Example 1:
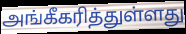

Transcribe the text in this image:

அங்கீகரித்துள்ளது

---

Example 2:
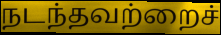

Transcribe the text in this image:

நடந்தவற்றைச்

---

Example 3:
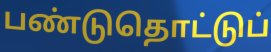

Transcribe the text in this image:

பண்டுதொட்டுப்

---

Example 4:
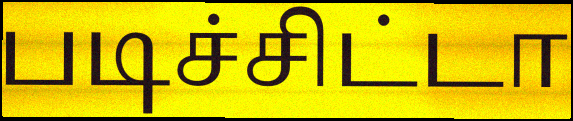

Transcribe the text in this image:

படிச்சிட்டா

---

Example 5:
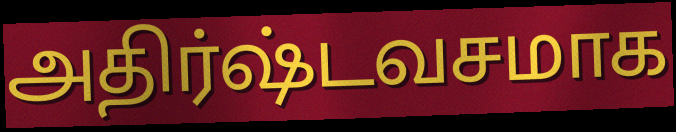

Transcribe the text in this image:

அதிர்ஷ்டவசமாக